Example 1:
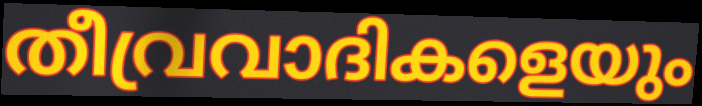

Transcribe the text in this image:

തീവ്രവാദികളെയും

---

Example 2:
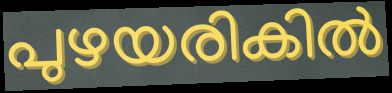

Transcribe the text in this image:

പുഴയരികിൽ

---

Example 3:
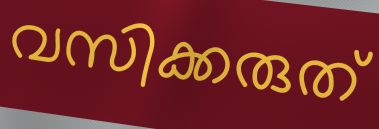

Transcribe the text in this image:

വസിക്കരുത്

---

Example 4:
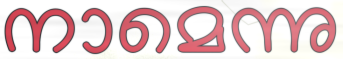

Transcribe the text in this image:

നാമെന്നു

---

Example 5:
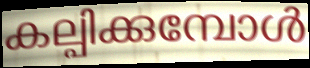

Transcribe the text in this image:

കല്പിക്കുമ്പോൾ